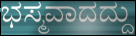
ಭಸ್ಮವಾದದ್ದು